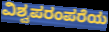
ವಿಶ್ವಪರಂಪರೆಯ